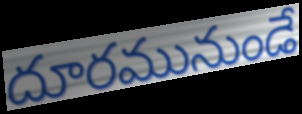
దూరమునుండే